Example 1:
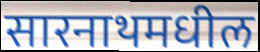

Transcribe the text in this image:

सारनाथमधील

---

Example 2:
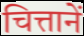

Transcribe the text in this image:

चित्तानें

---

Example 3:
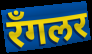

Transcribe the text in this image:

रॅंगलर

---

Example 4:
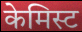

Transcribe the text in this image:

केमिस्ट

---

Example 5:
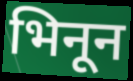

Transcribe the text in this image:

भिनून